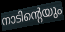
നാടിന്റെയും